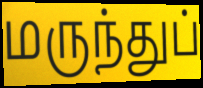
மருந்துப்